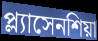
প্ল্যাসেনশিয়া